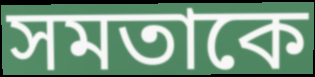
সমতাকে